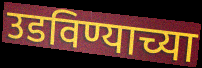
उडविण्याच्या